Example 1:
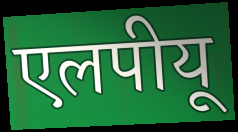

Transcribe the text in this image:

एलपीयू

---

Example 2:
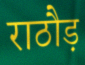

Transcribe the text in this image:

राठौड़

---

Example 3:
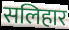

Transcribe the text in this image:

सलिहार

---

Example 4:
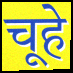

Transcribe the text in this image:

चूहे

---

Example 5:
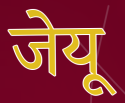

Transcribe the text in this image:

जेयू